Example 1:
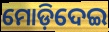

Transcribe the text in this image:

ମୋଡ଼ିଦେଇ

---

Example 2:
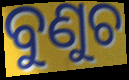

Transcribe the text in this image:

ବୁଣୁଚ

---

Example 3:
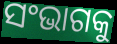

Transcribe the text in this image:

ସଂଭାଗକୁ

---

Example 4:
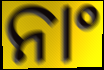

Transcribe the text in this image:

ନାଂ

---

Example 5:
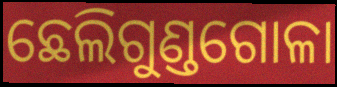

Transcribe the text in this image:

ଛେଲିଗୁଣ୍ଡଗୋଳା